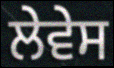
ਲੇਵੇਸ